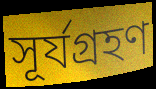
সূর্যগ্রহণ